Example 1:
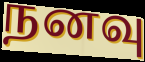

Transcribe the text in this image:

நனவு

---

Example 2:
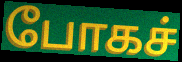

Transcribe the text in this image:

போகச்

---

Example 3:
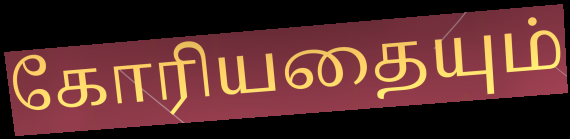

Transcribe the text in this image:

கோரியதையும்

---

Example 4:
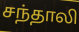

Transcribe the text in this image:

சந்தாலி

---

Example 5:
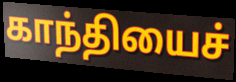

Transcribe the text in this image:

காந்தியைச்